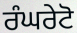
ਰੰਘਰੇਟੋ